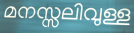
മനസ്സലിവുള്ള